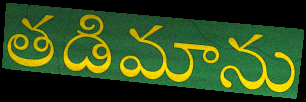
తడిమాను